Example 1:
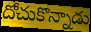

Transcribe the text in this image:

దోచుకొన్నాడు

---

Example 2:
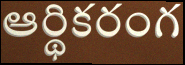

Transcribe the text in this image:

ఆర్థికరంగ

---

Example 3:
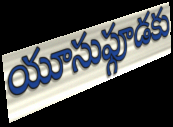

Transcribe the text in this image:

యూసుఫ్గూడకు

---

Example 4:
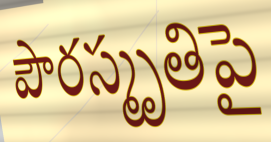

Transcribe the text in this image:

పౌరస్మృతిపై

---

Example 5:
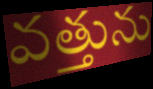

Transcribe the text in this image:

వత్తును